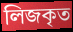
লিজকৃত